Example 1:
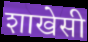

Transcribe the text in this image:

शाखेसी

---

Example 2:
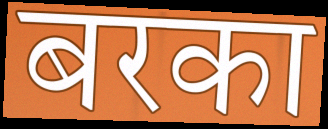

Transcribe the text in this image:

बरका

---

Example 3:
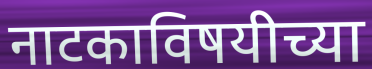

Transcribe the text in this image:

नाटकाविषयीच्या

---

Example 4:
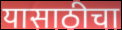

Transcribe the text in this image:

यासाठीचा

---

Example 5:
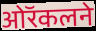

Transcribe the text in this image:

ओरॅकलने